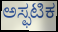
ಅಸ್ಫಟಿಕ